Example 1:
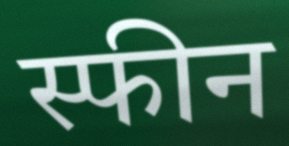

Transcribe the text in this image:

स्फीन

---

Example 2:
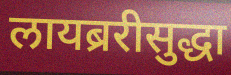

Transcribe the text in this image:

लायब्ररीसुद्धा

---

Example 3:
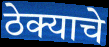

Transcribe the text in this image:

ठेक्याचे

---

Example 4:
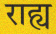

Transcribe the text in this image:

राह्य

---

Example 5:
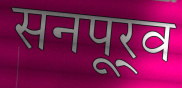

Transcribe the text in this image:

सनपूर्व